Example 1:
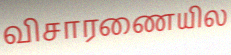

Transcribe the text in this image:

விசாரணையில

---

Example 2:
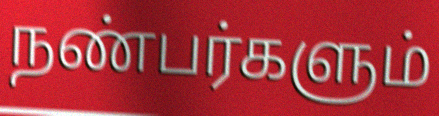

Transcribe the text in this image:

நண்பர்களும்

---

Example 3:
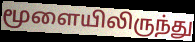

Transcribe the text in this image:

மூளையிலிருந்து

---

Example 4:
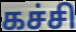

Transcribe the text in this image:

கச்சி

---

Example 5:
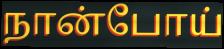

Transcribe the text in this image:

நான்போய்